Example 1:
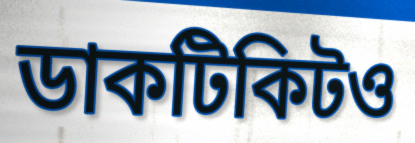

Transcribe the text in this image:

ডাকটিকিটও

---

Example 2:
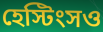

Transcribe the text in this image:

হেস্টিংসও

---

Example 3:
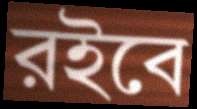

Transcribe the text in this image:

রইবে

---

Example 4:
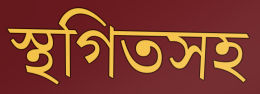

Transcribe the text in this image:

স্থগিতসহ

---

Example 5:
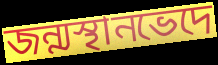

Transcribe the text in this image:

জন্মস্থানভেদে